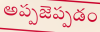
అప్పజెప్పడం